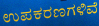
ಉಪಕರಣಗಳಿವೆ